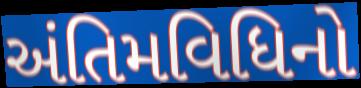
અંતિમવિધિનો